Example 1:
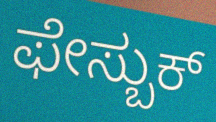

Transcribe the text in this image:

ಫೇಸ್ಬುಕ್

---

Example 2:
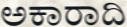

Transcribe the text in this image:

ಅಕಾರಾದಿ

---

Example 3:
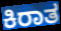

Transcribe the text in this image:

ಕಿರಾತ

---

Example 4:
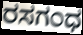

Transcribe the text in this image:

ರಸಗಂಧ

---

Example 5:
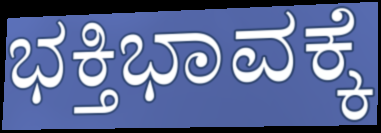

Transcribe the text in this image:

ಭಕ್ತಿಭಾವಕ್ಕೆ